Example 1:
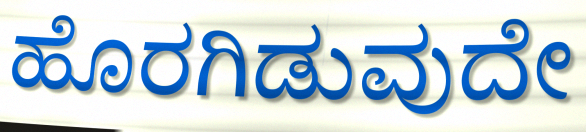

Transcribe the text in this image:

ಹೊರಗಿಡುವುದೇ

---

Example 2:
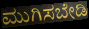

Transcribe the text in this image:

ಮುಗಿಸಬೇಡಿ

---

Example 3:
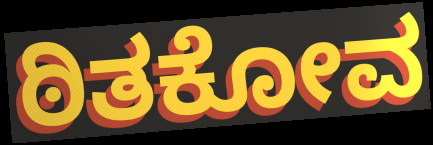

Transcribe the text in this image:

ಠಿತಕೋವ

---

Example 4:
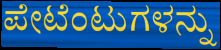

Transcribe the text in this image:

ಪೇಟೆಂಟುಗಳನ್ನು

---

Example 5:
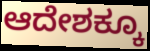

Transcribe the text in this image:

ಆದೇಶಕ್ಕೂ